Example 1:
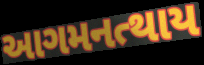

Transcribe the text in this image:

આગમનત્થાય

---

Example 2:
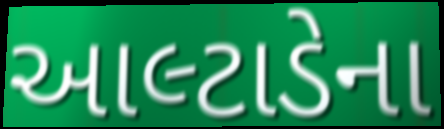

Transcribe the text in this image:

આલ્ટાડેના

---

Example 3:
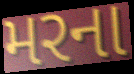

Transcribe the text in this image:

મરના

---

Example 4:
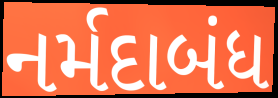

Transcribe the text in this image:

નર્મદાબંધ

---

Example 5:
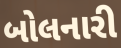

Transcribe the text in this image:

બોલનારી